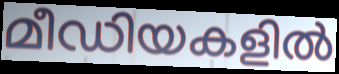
മീഡിയകളിൽ